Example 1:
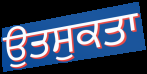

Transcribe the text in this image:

ਉਤਸੁਕਤਾ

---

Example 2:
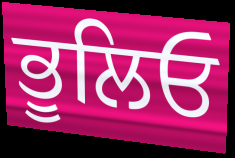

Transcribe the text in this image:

ਭੂਲਿਓ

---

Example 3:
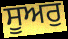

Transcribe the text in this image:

ਸੂਅਰੁ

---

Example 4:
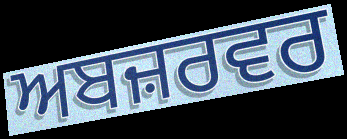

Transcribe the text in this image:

ਅਬਜ਼ਰਵਰ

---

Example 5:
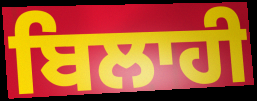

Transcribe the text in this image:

ਬਿਲਾਹੀ